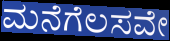
ಮನೆಗೆಲಸವೇ